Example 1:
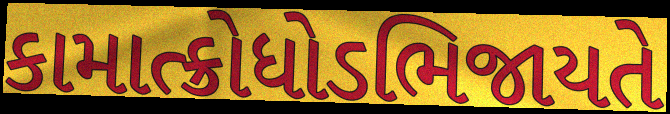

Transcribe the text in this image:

કામાત્ક્રોધોઽભિજાયતે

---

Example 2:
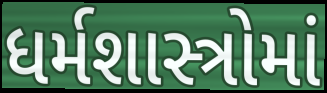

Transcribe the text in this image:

ધર્મશાસ્ત્રોમાં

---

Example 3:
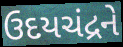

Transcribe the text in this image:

ઉદયચંદ્રને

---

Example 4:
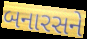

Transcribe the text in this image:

બનારસને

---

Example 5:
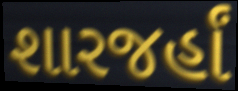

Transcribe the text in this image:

શારજર્હાં